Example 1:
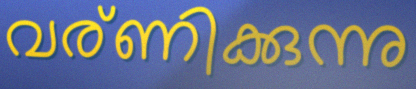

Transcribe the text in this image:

വര്ണിക്കുന്നു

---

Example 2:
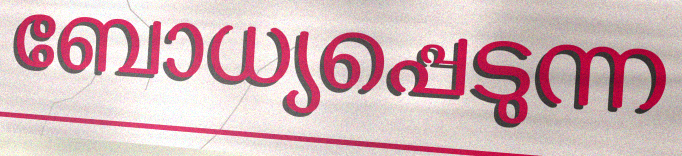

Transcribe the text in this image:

ബോധ്യപ്പെടുന്ന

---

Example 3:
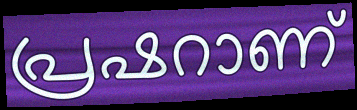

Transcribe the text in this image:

പ്രഷറാണ്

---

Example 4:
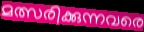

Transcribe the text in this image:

മത്സരിക്കുന്നവരെ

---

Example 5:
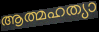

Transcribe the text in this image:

ആത്മഹത്യാ